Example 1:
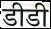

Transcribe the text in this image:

डीडी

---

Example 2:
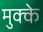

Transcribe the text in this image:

मुक्‍के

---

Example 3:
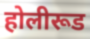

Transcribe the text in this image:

होलीरूड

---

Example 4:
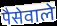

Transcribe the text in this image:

पैसेवाले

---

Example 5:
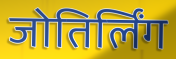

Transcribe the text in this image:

जोतिर्लिंग